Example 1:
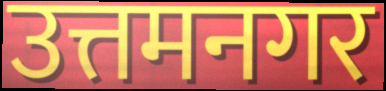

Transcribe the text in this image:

उत्तमनगर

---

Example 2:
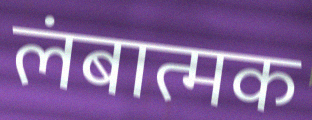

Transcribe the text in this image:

लंबात्मक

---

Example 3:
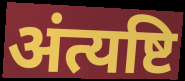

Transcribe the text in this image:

अंत्यष्टि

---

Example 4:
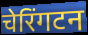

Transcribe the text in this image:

चेरिंगटन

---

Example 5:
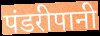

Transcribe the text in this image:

पंडरीपानी